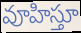
వూహిస్తూ